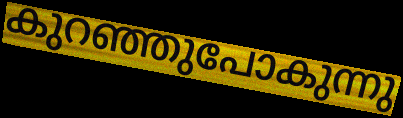
കുറഞ്ഞുപോകുന്നു